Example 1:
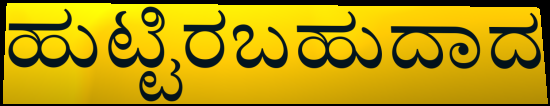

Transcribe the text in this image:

ಹುಟ್ಟಿರಬಹುದಾದ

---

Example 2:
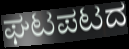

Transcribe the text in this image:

ಘಟಪಟದ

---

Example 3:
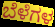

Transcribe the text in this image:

ಬೆಳೆಗಳ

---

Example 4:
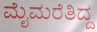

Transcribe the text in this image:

ಮೈಮರೆತಿದ್ದ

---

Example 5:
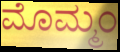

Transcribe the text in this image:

ಮೊಮ್ಮಂ